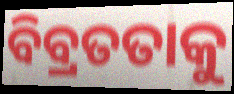
ବିବ୍ରତତାକୁ